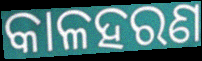
କାଳହରଣ